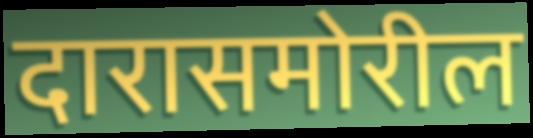
दारासमोरील